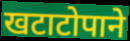
खटाटोपाने